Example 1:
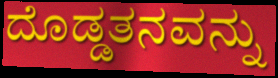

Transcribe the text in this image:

ದೊಡ್ಡತನವನ್ನು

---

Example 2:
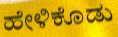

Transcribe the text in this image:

ಹೇಳಿಕೊಡು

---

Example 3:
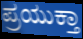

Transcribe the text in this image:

ಪ್ರಯುಕ್ತಾ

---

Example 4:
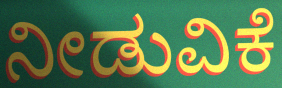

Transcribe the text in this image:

ನೀಡುವಿಕೆ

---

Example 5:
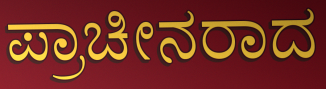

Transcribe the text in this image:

ಪ್ರಾಚೀನರಾದ